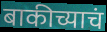
बाकीच्याचं